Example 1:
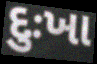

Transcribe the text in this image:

દુઃખા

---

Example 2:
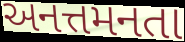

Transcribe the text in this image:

અનત્તમનતા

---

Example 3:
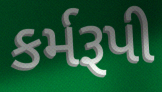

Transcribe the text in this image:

કર્મરૂપી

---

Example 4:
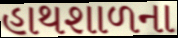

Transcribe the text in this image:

હાથશાળના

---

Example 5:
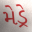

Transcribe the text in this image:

મેડ્રે